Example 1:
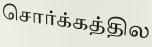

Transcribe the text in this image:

சொர்க்கத்தில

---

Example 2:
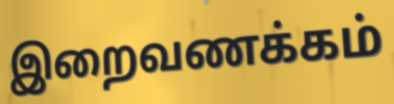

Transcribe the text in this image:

இறைவணக்கம்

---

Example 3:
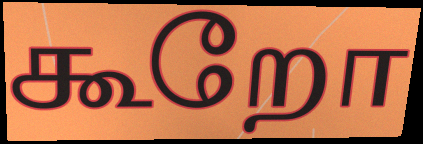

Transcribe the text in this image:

கூறோ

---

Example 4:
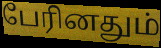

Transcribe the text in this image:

பேரினதும்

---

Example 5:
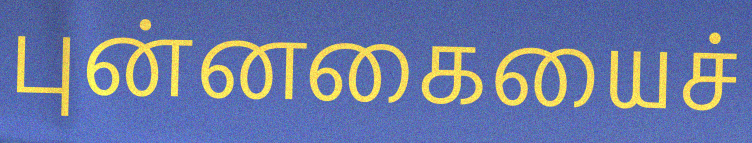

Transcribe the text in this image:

புன்னகையைச்